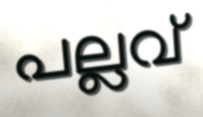
പല്ലവ്